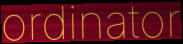
ordinator